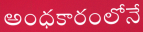
అంధకారంలోనే